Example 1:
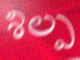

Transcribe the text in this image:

శిల్ప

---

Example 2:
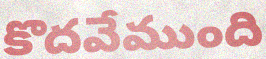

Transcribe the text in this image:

కొదవేముంది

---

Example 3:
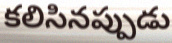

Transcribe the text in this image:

కలిసినప్పుడు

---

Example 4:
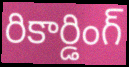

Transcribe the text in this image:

రికార్డింగ్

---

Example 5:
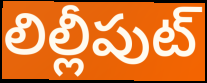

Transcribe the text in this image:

లిల్లీపుట్